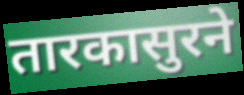
तारकासुरने